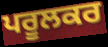
ਪਰੂਲਕਰ